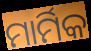
ମାର୍ମିକ